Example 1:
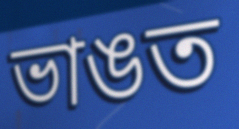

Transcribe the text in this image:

ভাঙত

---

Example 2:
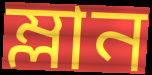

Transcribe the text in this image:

ম্লান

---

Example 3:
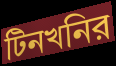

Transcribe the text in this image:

টিনখনির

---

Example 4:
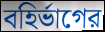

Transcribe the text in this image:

বহির্ভাগের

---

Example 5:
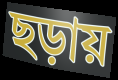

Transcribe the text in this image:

ছড়ায়